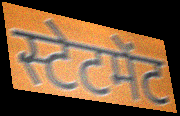
स्टेटमेंट